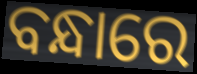
ବନ୍ଧାରେ